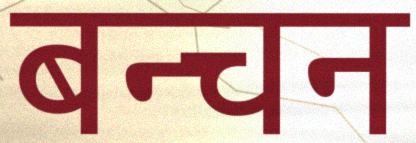
बन्चन